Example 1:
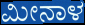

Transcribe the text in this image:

ಮೀನಾಳ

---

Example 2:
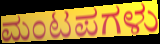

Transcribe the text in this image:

ಮಂಟಪಗಳು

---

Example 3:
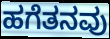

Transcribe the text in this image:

ಹಗೆತನವು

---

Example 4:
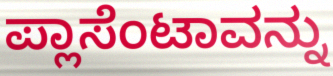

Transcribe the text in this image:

ಪ್ಲಾಸೆಂಟಾವನ್ನು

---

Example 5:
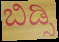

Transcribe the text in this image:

ಬಿಡ್ಸಿ